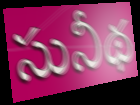
సునీథ